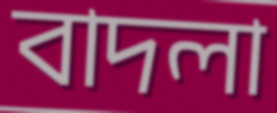
বাদলা